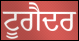
ਟੂਗੈਦਰ